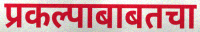
प्रकल्पाबाबतचा